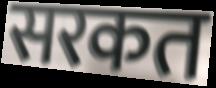
सरकत